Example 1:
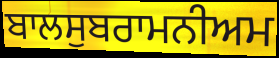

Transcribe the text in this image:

ਬਾਲਸੁਬਰਾਮਨੀਅਮ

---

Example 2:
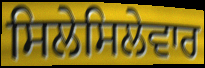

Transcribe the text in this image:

ਸਿਲੇਸਿਲੇਵਾਰ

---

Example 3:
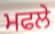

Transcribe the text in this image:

ਮਫਲੇ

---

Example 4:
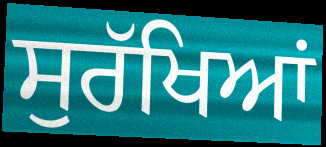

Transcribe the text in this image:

ਸੁਰੱਖਿਆਂ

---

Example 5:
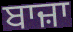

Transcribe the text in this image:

ਬਾਜ਼ਾ